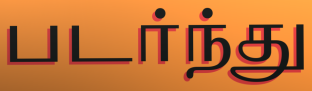
படர்ந்து